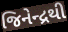
જિનેન્દ્રથી